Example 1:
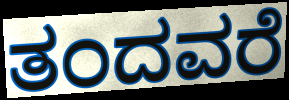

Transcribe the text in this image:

ತಂದವರೆ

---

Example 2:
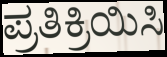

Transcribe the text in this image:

ಪ್ರತಿಕ್ರಿಯಿಸಿ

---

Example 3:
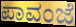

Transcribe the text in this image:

ಪಾವಂಜೆ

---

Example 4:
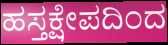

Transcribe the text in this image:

ಹಸ್ತಕ್ಷೇಪದಿಂದ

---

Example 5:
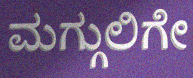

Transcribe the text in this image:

ಮಗ್ಗುಲಿಗೇ